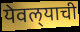
येवल्याची